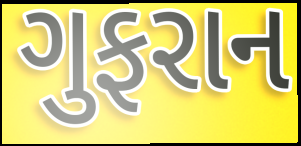
ગુફરાન